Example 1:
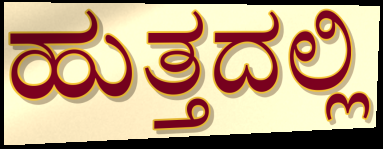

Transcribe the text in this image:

ಹುತ್ತದಲ್ಲಿ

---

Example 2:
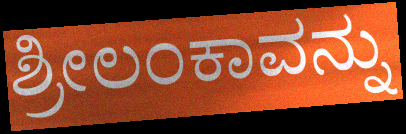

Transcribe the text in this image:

ಶ್ರೀಲಂಕಾವನ್ನು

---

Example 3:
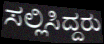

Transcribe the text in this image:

ಸಲ್ಲಿಸಿದ್ದರು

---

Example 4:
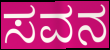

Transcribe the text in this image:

ಸವನ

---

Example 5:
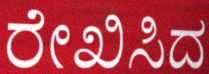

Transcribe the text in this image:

ರೇಖಿಸಿದ